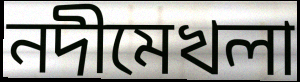
নদীমেখলা